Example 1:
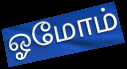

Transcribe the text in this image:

ஓமோம்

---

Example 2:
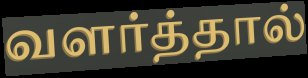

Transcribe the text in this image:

வளர்த்தால்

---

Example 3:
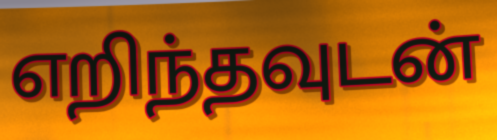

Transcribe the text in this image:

எறிந்தவுடன்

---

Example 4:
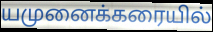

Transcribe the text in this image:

யமுனைக்கரையில்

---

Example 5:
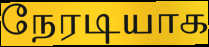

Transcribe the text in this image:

நேரடியாக